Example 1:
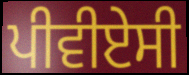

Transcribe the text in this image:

ਪੀਵੀਏਸੀ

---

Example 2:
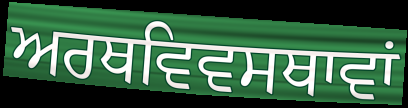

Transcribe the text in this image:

ਅਰਥਵਿਵਸਥਾਵਾਂ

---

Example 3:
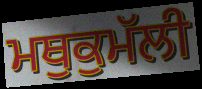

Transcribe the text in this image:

ਮਥੁਕੁਮੱਲੀ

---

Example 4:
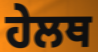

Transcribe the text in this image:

ਹੇਲਥ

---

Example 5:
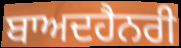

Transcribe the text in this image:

ਬਾਅਦਹੈਨਰੀ